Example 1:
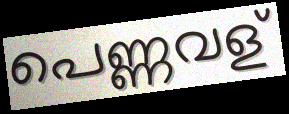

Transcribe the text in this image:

പെണ്ണവള്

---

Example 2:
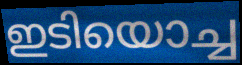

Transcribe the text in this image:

ഇടിയൊച്ച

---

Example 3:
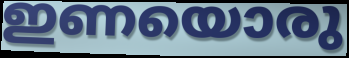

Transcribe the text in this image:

ഇണയൊരു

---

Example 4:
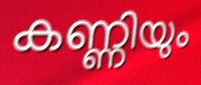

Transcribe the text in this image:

കണ്ണിയും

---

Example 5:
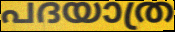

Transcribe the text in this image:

പദയാത്ര